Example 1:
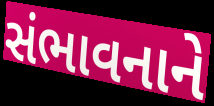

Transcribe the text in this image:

સંભાવનાને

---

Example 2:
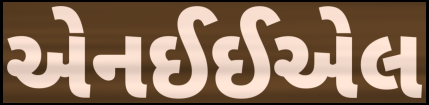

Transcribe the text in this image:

એનઈઈએલ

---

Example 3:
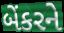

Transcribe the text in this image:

બેંકરને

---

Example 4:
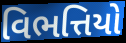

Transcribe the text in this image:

વિભત્તિયો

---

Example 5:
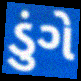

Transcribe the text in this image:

ડુંગે